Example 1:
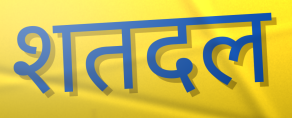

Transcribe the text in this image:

शतदल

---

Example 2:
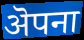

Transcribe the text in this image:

ऄपना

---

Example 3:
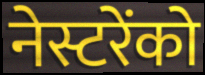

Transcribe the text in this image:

नेस्टरेंको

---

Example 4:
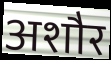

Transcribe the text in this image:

अशौर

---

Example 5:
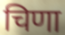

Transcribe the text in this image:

चिणा